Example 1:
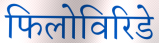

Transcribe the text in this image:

फिलोविरिडे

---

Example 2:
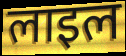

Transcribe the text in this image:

लाइल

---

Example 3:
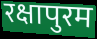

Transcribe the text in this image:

रक्षापुरम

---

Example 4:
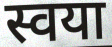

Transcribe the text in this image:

स्वया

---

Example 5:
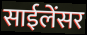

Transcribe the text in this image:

साईलेंसर